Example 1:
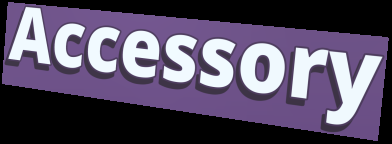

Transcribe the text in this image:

Accessory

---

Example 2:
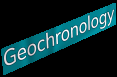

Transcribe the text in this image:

Geochronology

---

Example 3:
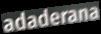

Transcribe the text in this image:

adaderana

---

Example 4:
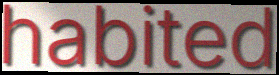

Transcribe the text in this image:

habited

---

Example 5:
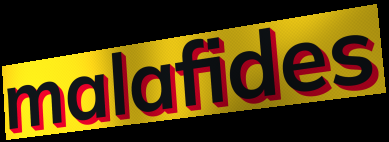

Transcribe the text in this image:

malafides